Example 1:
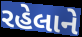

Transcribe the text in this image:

રહેલાને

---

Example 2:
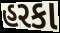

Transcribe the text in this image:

હરકા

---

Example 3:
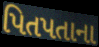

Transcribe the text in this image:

પિતપતાના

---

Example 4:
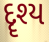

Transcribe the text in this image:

દૄશ્ય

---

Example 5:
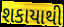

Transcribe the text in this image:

શકાયાથી